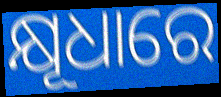
କ୍ଷୂଧାରେ